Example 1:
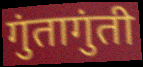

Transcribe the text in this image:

गुंतागुंती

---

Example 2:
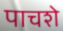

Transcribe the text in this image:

पाचशे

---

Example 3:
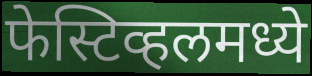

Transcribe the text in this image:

फेस्टिव्हलमध्ये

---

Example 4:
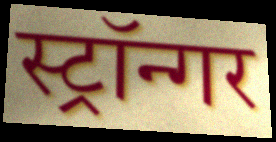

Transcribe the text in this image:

स्ट्रॉन्गर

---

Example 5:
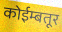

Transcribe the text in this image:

कोईम्बतूर